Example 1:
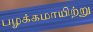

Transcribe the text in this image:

பழக்கமாயிற்று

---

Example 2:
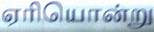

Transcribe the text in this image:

ஏரியொன்று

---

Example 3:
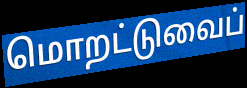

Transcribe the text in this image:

மொறட்டுவைப்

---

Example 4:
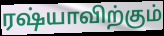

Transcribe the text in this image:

ரஷ்யாவிற்கும்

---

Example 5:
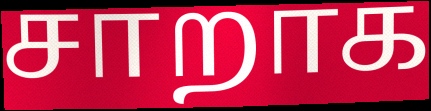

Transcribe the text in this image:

சாறாக